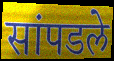
सांपडले